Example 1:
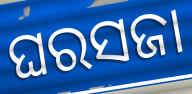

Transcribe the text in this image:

ଘରସଜା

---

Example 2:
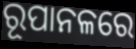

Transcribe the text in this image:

ରୂପାନଳରେ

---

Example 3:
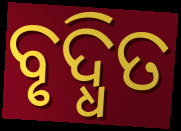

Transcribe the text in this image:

ବୃଦ୍ଧିତ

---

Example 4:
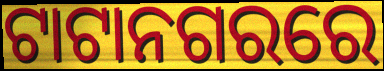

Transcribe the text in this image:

ଟାଟାନଗରରେ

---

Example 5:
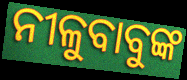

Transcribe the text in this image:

ନୀଳୁବାବୁଙ୍କ